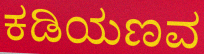
ಕಡಿಯಣವ